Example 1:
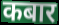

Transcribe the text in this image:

कबार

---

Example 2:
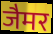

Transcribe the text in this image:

जैमर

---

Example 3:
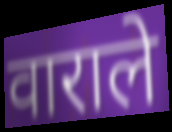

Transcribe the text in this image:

वाराले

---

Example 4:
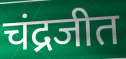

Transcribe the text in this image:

चंद्रजीत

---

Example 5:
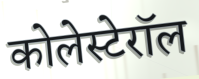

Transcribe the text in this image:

कोलेस्टेरॉल